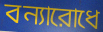
বন্যারোধে